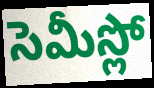
సెమీస్లో